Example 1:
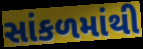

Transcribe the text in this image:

સાંકળમાંથી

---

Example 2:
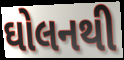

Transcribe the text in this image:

ઘોલનથી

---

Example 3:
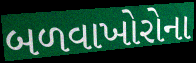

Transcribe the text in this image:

બળવાખોરોના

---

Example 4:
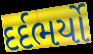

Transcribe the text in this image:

દર્દભર્યો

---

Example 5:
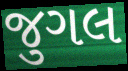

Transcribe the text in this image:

જુગલ